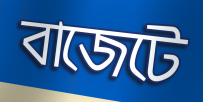
বাজেটে